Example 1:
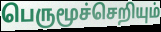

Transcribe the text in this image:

பெருமூச்செறியும்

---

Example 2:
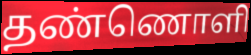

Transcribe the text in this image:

தண்ணொளி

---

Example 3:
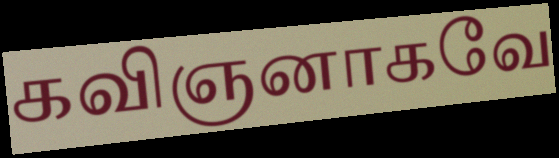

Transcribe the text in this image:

கவிஞனாகவே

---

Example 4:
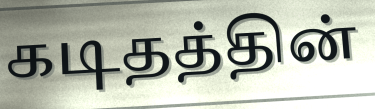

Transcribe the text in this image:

கடிதத்தின்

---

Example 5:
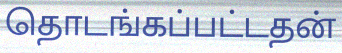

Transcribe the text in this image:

தொடங்கப்பட்டதன்